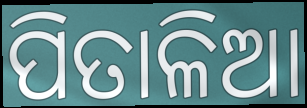
ପିତାଳିଆ